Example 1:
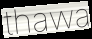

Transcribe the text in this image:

thawa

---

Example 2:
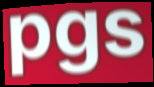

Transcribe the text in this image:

pgs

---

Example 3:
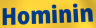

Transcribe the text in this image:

Hominin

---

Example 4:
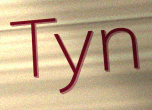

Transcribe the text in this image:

Tyn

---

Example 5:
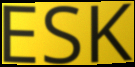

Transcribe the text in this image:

ESK